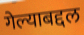
गेल्याबद्दल